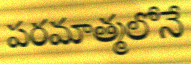
పరమాత్మలోనే